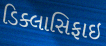
ડિક્લાસિફાઇ